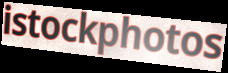
istockphotos